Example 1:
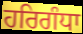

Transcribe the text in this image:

ਹਰਿਗੰਧਾ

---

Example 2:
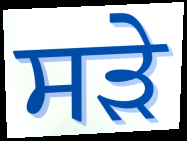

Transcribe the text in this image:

ਸੜੇ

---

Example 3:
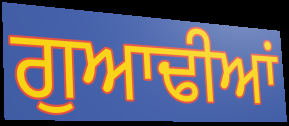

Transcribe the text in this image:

ਗੁਆਢੀਆਂ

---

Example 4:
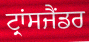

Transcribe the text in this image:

ਟ੍ਰਾਂਸਜੈਂਡਰ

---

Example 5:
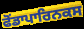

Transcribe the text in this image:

ਫੋਂਡਾਪਾਰਿਨਕਸ